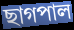
ছাগপাল